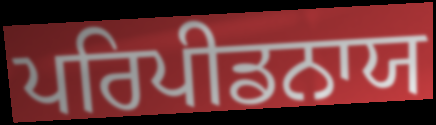
ਪਰਿਪੀਡਨਾਯ